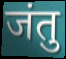
जंतु